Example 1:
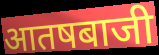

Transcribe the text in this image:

आतषबाजी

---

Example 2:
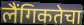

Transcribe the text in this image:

लैंगिकतेचा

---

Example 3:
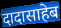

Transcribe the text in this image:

दादासाहेब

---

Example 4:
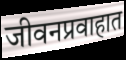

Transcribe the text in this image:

जीवनप्रवाहात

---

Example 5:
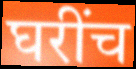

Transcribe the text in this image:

घरींच